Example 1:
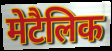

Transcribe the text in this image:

मेटैलिक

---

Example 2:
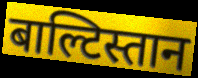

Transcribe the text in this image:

बाल्टिस्तान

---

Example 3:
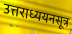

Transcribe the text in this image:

उत्तराध्ययनसूत्र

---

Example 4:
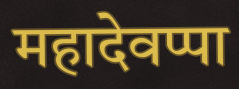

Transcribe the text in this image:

महादेवप्पा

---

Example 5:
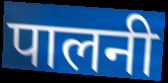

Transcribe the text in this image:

पालनी